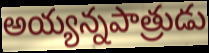
అయ్యన్నపాత్రుడు